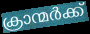
ക്രാന്മർക്ക്